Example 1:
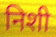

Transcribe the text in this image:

निशी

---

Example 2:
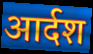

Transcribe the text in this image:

आर्दश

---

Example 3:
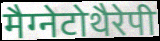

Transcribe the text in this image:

मैग्नेटोथैरेपी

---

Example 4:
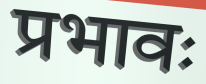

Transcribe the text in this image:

प्रभावः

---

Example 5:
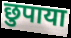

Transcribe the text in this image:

छुपाया